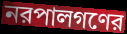
নরপালগণের